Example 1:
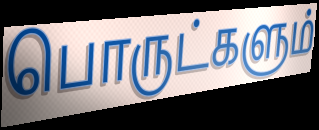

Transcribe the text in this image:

பொருட்களும்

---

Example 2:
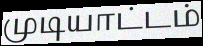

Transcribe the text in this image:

முடியாட்டம்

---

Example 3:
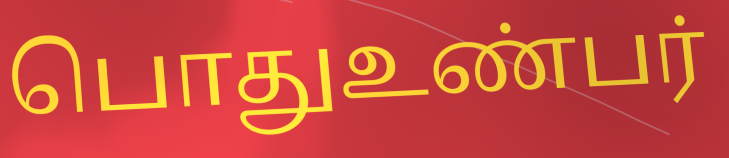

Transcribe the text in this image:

பொதுஉண்பர்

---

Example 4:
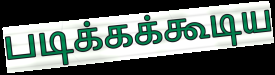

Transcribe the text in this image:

படிக்கக்கூடிய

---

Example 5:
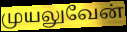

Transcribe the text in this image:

முயலுவேன்